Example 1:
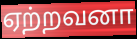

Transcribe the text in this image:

ஏற்றவனா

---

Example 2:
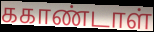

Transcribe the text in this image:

ககாண்டாள்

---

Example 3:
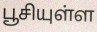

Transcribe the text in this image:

பூசியுள்ள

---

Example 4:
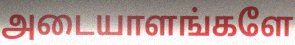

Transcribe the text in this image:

அடையாளங்களே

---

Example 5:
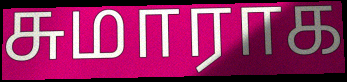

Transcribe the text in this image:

சுமாராக